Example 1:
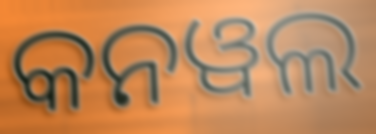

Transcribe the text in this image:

କନୱଲ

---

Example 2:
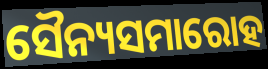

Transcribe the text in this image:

ସୈନ୍ୟସମାରୋହ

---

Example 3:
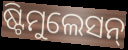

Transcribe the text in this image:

ଷ୍ଟିମୁଲେସନ୍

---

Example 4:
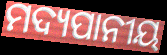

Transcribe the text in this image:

ମଦ୍ୟପାନୀୟ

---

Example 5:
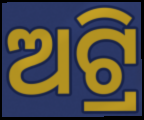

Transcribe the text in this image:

ଅଟ୍ରି